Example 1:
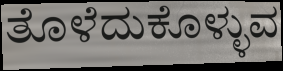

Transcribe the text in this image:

ತೊಳೆದುಕೊಳ್ಳುವ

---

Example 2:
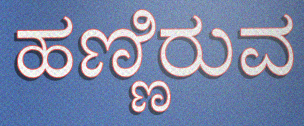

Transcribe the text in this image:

ಹಣ್ಣಿರುವ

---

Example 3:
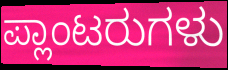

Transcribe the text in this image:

ಪ್ಲಾಂಟರುಗಳು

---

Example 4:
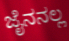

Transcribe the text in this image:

ಜೈನನಲ್ಲ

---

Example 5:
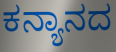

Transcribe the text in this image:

ಕನ್ಯಾನದ